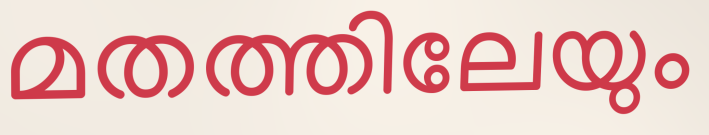
മതത്തിലേയും